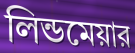
লিন্ডমেয়ার